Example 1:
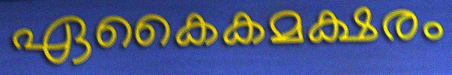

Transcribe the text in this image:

ഏകൈകമക്ഷരം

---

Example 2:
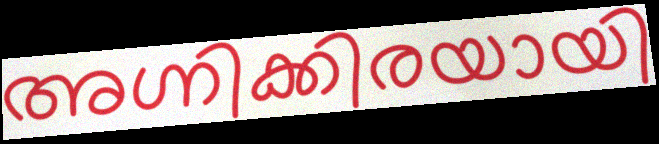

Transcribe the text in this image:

അഗ്നിക്കിരയായി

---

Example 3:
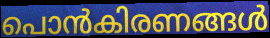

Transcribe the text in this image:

പൊൻകിരണങ്ങൾ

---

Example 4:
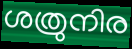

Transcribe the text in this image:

ശത്രുനിര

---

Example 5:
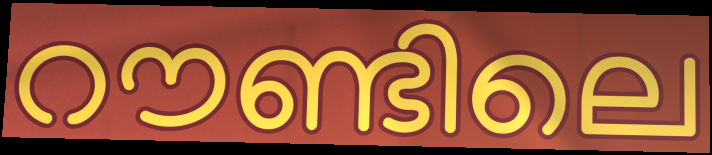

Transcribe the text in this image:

റൗണ്ടിലെ